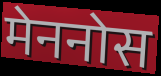
मेननोस